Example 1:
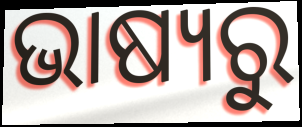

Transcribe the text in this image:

ଭାଷ୍ୟରୁ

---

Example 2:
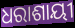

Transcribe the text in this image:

ଧରାଶାୟୀ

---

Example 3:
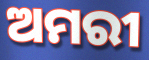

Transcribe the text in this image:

ଅମରୀ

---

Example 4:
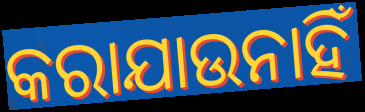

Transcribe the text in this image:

କରାଯାଉନାହିଁ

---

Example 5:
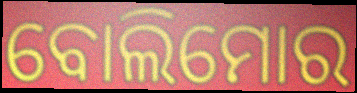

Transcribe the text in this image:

ବୋଲିମୋର